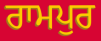
ਰਾਮਪੁਰ